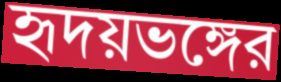
হৃদয়ভঙ্গের